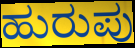
ಹುರುಪು